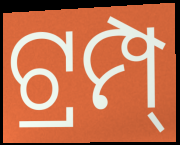
ଟ୍ରମ୍ପ୍